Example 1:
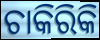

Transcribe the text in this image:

ଚାକିରିକି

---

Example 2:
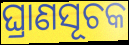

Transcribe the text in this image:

ଘ୍ରାଣସୂଚକ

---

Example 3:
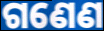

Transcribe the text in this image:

ଗଣେଣ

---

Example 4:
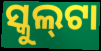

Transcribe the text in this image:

ସ୍କୁଲ୍‍ଟା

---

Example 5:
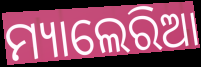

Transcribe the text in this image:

ମ୍ଯାଲେରିଆ